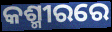
କଶ୍ମୀରରେ